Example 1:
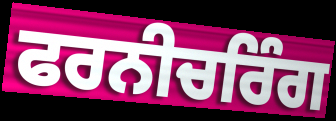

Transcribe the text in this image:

ਫਰਨੀਚਰਿੰਗ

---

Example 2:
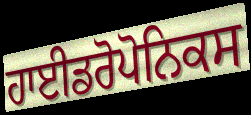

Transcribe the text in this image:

ਹਾਈਡਰੋਪੋਨਿਕਸ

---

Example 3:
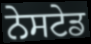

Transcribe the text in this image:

ਨੇਸਟੇਡ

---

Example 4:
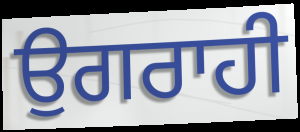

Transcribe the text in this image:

ਉਗਰਾਹੀ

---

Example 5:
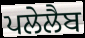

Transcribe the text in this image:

ਪਲੇਲੈਬ